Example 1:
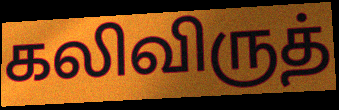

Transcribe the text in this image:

கலிவிருத்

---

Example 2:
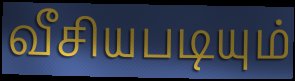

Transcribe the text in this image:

வீசியபடியும்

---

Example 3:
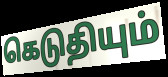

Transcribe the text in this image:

கெடுதியும்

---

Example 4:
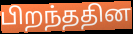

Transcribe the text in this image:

பிறந்ததின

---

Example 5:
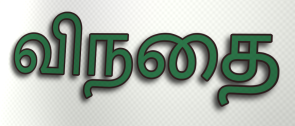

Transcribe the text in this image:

விநதை